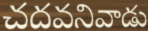
చదవనివాడు